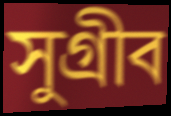
সুগ্রীব